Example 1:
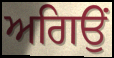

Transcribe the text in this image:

ਅਗਿਉਂ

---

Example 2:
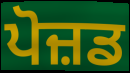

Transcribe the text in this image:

ਪੋਜ਼ਡ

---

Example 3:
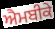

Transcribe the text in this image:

ਐਮਬੀਕੇ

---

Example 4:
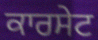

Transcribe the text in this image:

ਕਾਰਸੇਟ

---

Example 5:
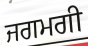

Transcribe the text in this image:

ਜਗਮਗੀ